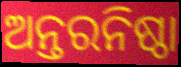
ଅନ୍ତରନିଷ୍ଠା